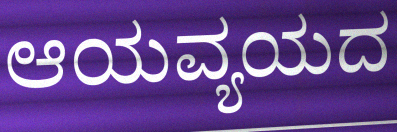
ಆಯವ್ಯಯದ